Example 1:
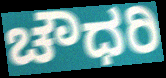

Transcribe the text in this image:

ಚೌಧರಿ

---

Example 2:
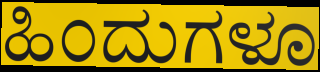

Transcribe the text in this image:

ಹಿಂದುಗಳೂ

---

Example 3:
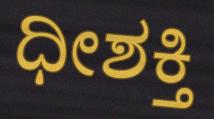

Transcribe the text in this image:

ಧೀಶಕ್ತಿ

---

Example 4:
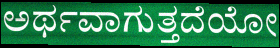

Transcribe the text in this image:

ಅರ್ಥವಾಗುತ್ತದೆಯೋ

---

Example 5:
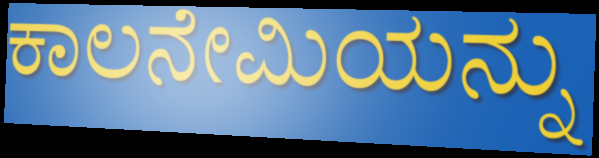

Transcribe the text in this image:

ಕಾಲನೇಮಿಯನ್ನು